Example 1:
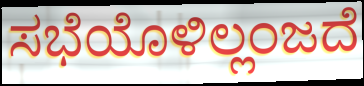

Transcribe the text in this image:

ಸಭೆಯೊಳಿಲ್ಲಂಜದೆ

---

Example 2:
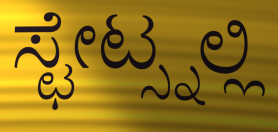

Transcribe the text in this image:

ಸ್ಟೇಟ್ಸ್ನಲ್ಲಿ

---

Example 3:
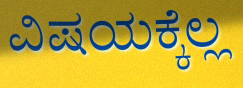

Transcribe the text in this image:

ವಿಷಯಕ್ಕೆಲ್ಲ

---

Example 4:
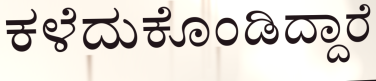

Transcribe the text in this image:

ಕಳೆದುಕೊಂಡಿದ್ದಾರೆ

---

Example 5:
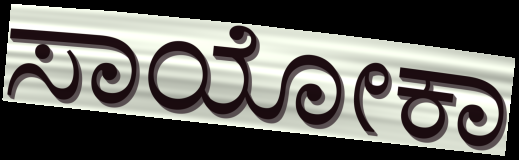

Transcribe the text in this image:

ಸಾಯೋಕಾ